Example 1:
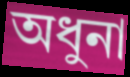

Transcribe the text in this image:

অধুনা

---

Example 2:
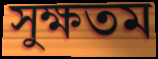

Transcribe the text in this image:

সুক্ষতম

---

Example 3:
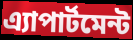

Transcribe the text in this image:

এ্যাপার্টমেন্ট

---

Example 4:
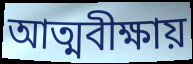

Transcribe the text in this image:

আত্মবীক্ষায়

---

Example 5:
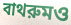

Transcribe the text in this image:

বাথরুমও